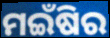
ମଇଁଷିର